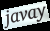
javay